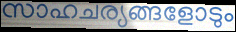
സാഹചര്യങ്ങളോടും